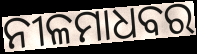
ନୀଳମାଧବର